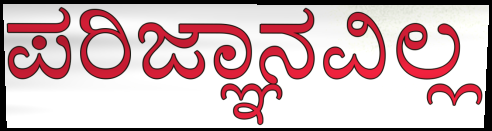
ಪರಿಜ್ಞಾನವಿಲ್ಲ